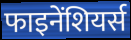
फाइनेंशियर्स